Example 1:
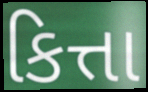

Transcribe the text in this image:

કિત્તા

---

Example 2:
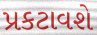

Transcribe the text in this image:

પ્રકટાવશે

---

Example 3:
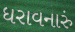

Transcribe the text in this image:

ધરાવનારું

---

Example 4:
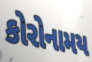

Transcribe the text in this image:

કોરોનામય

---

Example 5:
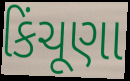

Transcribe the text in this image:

કિંચૂણા